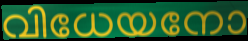
വിധേയനോ